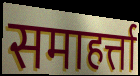
समाहर्त्ता